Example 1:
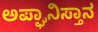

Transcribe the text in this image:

ಅಪ್ಘಾನಿಸ್ತಾನ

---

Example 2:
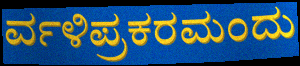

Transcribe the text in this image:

ರ್ವಳಿಪ್ರಕರಮಂದು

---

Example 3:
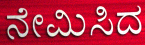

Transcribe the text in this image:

ನೇಮಿಸಿದ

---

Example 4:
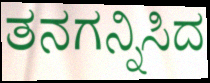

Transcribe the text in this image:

ತನಗನ್ನಿಸಿದ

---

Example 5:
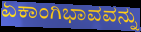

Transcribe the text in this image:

ಏಕಾಂಗಿಭಾವವನ್ನು